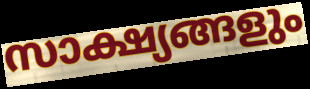
സാക്ഷ്യങ്ങളും